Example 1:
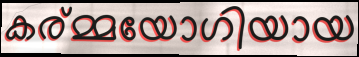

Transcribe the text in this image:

കര്മ്മയോഗിയായ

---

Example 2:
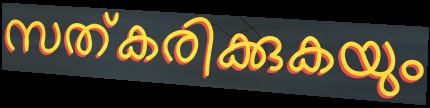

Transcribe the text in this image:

സത്കരിക്കുകയും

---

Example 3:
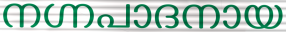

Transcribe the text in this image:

നഗ്നപാദനായ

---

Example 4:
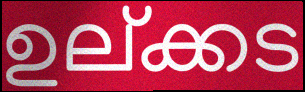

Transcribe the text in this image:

ഉല്ക്കട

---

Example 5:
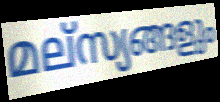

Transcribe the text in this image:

മല്സ്യങ്ങളും